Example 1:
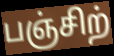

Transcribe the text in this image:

பஞ்சிற்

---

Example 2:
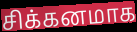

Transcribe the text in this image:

சிக்கனமாக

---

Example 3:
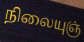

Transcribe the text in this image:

நிலையுஞ்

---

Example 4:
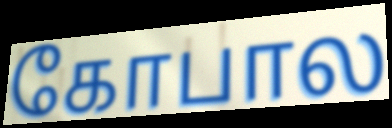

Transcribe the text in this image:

கோபால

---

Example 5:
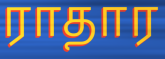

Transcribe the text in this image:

ராதார